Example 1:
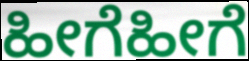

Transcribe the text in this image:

ಹೀಗೆಹೀಗೆ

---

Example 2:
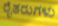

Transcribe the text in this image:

ರೈತರುಗಳು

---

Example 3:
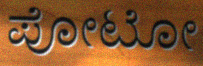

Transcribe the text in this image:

ಪೋಟೋ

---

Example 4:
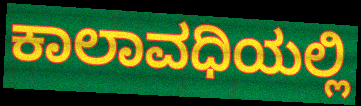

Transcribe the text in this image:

ಕಾಲಾವಧಿಯಲ್ಲಿ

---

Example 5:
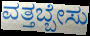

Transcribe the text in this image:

ವತ್ತಬ್ಬೇಸು